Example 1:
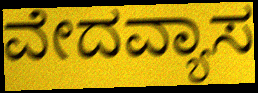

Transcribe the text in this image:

ವೇದವ್ಯಾಸ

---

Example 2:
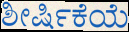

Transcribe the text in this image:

ಶೀರ್ಷಿಕೆಯೆ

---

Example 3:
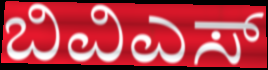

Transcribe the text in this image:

ಬಿವಿಎಸ್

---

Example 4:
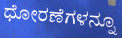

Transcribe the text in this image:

ಧೋರಣೆಗಳನ್ನೂ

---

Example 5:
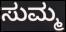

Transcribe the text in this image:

ಸುಮ್ಮ